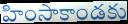
హింసాకాండకు